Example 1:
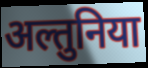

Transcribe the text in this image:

अल्तुनिया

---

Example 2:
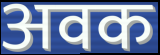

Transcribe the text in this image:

अवक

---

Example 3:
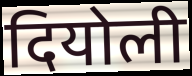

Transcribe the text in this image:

दियोली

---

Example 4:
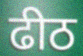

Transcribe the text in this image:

ढीठ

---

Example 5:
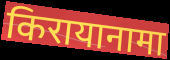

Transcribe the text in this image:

किरायानामा